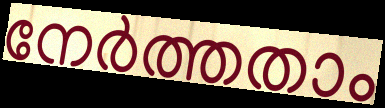
നേർത്തതാം